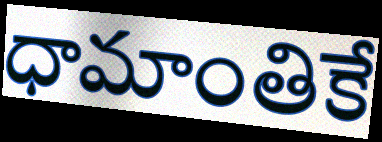
ధామాంతికే